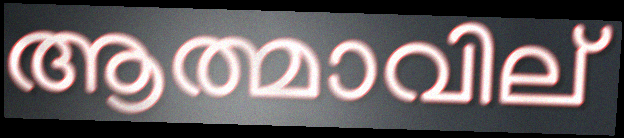
ആത്മാവില്